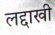
लद्दाखी